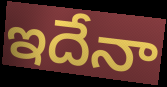
ఇదేనా